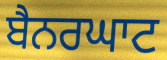
ਬੈਨਰਘਾਟ